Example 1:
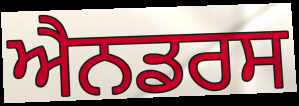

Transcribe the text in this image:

ਐਨਡਰਸ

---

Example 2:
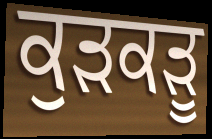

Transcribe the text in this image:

ਕੁੜਕੜੂ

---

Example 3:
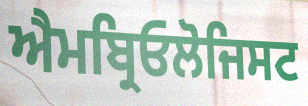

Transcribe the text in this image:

ਐਮਬ੍ਰਿਓਲੋਜਿਸਟ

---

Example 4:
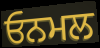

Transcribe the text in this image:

ਓਨਮਲ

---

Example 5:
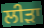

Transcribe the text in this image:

ਲੀੜਾ